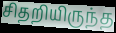
சிதறியிருந்த